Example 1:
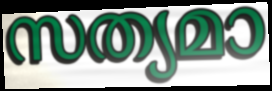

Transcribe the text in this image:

സത്യമാ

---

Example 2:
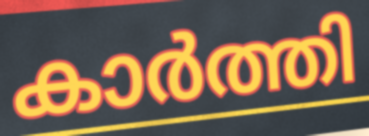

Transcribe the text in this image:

കാർത്തി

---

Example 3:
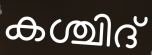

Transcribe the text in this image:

കശ്ചിദ്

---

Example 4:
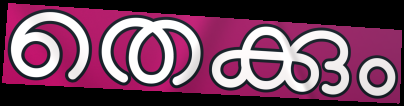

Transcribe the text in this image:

തെക്കും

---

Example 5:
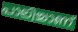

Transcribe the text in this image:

പാലിച്ചാണ്